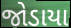
જોડાયા